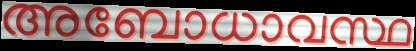
അബോധാവസ്ഥ